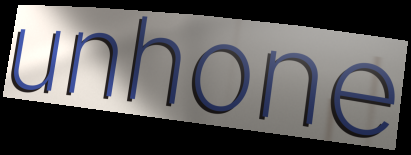
unhone